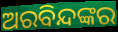
ଅରବିନ୍ଦଙ୍କର